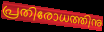
പ്രതിരോധത്തിനു